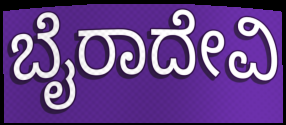
ಬೈರಾದೇವಿ